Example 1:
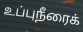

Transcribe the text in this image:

உப்புநீரைக்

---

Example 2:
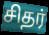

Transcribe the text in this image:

சிதர்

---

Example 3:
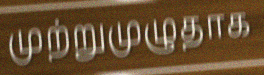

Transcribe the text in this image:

முற்றுமுழுதாக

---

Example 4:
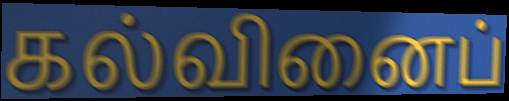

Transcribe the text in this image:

கல்வினைப்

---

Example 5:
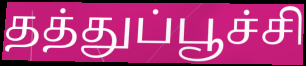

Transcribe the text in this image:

தத்துப்பூச்சி